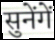
सुनेंगें